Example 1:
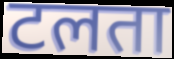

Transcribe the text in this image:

टलता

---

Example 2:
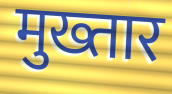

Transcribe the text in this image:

मुख्‍तार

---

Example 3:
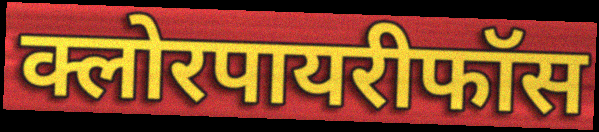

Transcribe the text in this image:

क्लोरपायरीफॉस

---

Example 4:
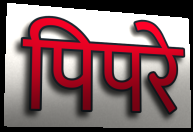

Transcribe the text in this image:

पिपरे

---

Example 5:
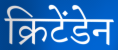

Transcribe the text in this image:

क्रिटेंडेन